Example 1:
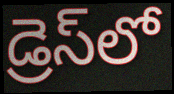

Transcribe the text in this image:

డ్రెస్‌లో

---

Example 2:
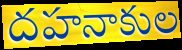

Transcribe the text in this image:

దహనాకుల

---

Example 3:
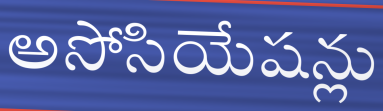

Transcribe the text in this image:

అసోసియేషన్లు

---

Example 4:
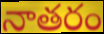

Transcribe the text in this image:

నాతరం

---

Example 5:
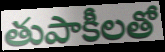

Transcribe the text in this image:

తుపాకీలతో